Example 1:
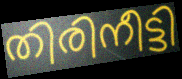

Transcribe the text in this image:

തിരിനീട്ടി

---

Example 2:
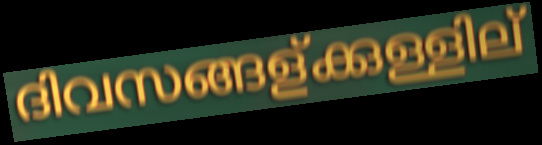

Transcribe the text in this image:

ദിവസങ്ങള്ക്കുള്ളില്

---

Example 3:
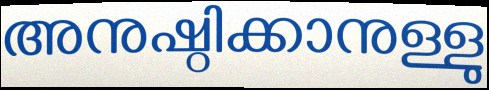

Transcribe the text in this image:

അനുഷ്ഠിക്കാനുള്ളു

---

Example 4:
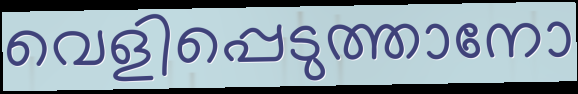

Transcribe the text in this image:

വെളിപ്പെടുത്താനോ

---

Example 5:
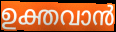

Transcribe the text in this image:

ഉക്തവാൻ